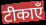
टीकाएँ